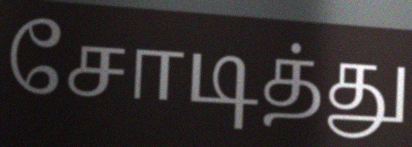
சோடித்து